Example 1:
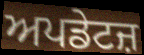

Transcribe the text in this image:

ਅਪਡੇਟਜ਼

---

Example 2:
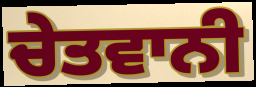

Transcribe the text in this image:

ਚੇਤਵਾਨੀ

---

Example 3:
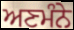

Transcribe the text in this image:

ਅਣਮੰਨੇ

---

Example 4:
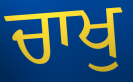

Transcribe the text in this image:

ਚਾਖੁ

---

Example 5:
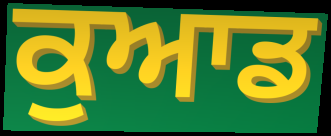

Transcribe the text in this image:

ਕੁਆਡ